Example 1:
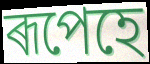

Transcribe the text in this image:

ৰূপেহে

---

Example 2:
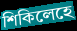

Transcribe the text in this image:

শিকিলেহে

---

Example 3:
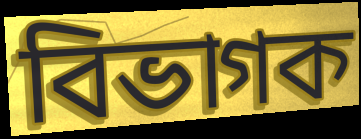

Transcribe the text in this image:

বিভাগক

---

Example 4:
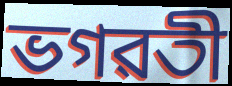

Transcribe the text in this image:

ভগৱতী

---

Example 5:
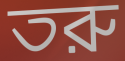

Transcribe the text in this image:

তৰু